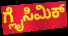
ಗ್ಲೈಸಿಮಿಕ್